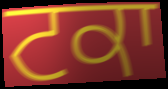
ਟਕਾ